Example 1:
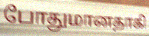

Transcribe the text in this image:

போதுமானதாகி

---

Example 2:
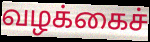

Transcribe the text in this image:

வழக்கைச்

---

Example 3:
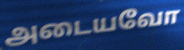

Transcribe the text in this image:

அடையவோ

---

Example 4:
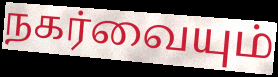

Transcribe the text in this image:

நகர்வையும்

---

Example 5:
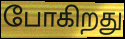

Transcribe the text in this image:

போகிறது